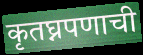
कृतघ्नपणाची